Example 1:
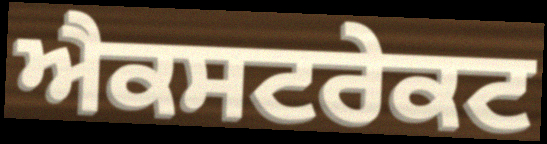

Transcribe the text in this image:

ਐਕਸਟਰੇਕਟ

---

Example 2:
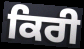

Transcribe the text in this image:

ਕਿਰੀ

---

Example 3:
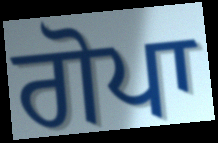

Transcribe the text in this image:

ਗੋਪਾ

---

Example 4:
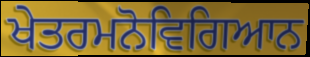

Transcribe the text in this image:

ਖੇਤਰਮਨੋਵਿਗਿਆਨ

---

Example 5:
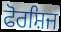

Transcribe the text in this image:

ਫੋਰਸ਼ਿਜ